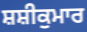
ਸ਼ਸ਼ੀਕੁਮਾਰ